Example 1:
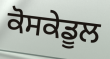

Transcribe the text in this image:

ਕੋਸਕੇਡੂਲ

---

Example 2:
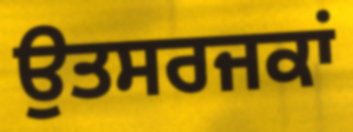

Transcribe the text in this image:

ਉਤਸਰਜਕਾਂ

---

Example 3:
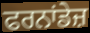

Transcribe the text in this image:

ਫਰਨਾਂਡੇਜ਼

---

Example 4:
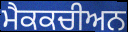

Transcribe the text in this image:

ਮੈਕਕਚੀਅਨ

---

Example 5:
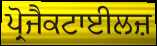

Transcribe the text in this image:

ਪ੍ਰੋਜੈਕਟਾਈਲਜ਼